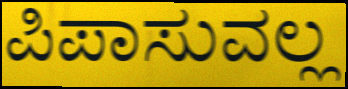
ಪಿಪಾಸುವಲ್ಲ